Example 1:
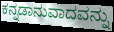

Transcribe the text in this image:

ಕನ್ನಡಾನುವಾದವನ್ನು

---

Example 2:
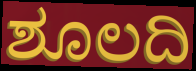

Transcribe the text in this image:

ಶೂಲದಿ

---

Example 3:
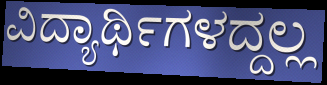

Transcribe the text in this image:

ವಿದ್ಯಾರ್ಥಿಗಳದ್ದಲ್ಲ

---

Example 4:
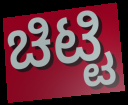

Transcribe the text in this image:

ಚಿಟ್ಟಿ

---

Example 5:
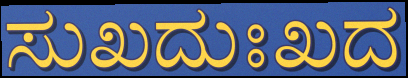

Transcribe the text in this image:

ಸುಖದುಃಖದ